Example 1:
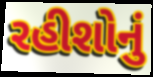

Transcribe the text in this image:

રહીશોનું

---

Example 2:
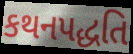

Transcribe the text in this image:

કથનપદ્ધતિ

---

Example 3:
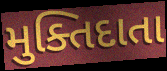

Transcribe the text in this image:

મુક્તિદાતા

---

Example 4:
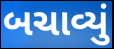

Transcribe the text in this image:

બચાવ્યું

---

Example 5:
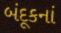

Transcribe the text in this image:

બંદૂકનાં